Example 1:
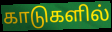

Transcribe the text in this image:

காடுகளில்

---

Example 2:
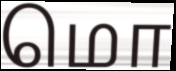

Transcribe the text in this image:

மொ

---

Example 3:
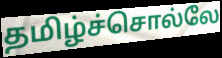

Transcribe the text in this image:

தமிழ்ச்சொல்லே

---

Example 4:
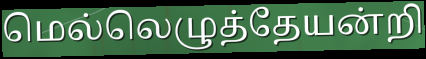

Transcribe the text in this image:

மெல்லெழுத்தேயன்றி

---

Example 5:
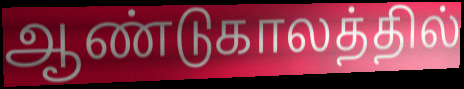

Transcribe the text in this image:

ஆண்டுகாலத்தில்